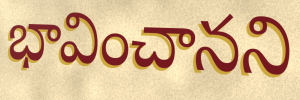
భావించానని